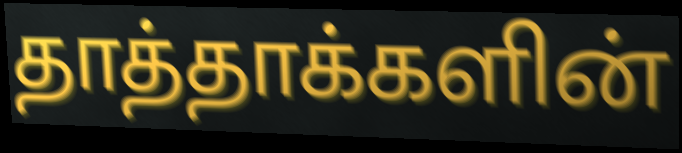
தாத்தாக்களின்